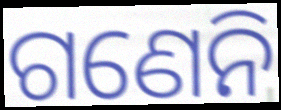
ଗଣେନି